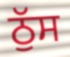
ਠੁੱਸ